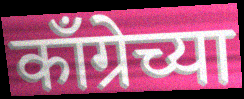
काँग्रेच्या